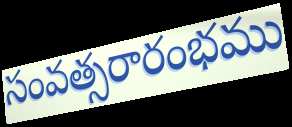
సంవత్సరారంభము